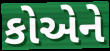
કોએને